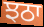
ਝਠਾ